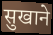
सुखाने